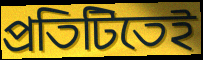
প্রতিটিতেই